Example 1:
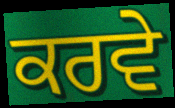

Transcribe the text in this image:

ਕਰਵੇ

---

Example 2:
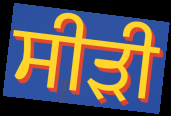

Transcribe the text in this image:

ਸੀੜੀ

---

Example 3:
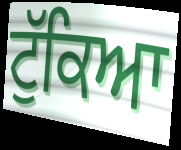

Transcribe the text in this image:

ਟੁੱਕਿਆ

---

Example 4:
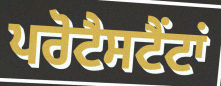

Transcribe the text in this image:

ਪਰੋਟੈਸਟੈਂਟਾਂ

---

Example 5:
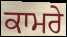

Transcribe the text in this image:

ਕਾਮਰੇ